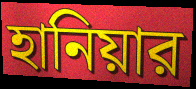
হানিয়ার